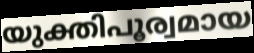
യുക്തിപൂര്വമായ